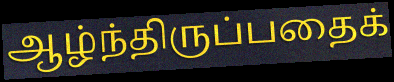
ஆழ்ந்திருப்பதைக்